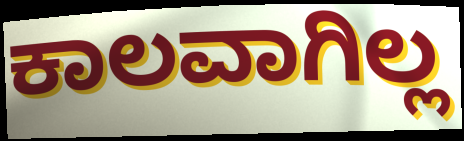
ಕಾಲವಾಗಿಲ್ಲ